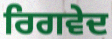
ਰਿਗਵੇਦ